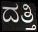
ದತ್ತಿ